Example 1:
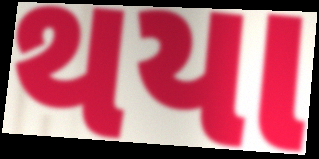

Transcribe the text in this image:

થયા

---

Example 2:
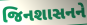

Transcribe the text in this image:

જિનશાસનને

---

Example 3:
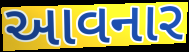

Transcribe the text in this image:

આવનાર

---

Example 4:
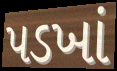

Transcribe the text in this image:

પડખાં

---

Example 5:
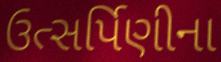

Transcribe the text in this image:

ઉત્સર્પિણીના